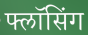
फ्लॉसिंग